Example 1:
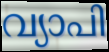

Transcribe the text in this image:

വ്യാപി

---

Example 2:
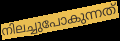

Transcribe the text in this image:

നിലച്ചുപോകുന്നത്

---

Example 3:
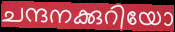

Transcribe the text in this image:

ചന്ദനക്കുറിയോ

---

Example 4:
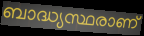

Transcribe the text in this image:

ബാദ്ധ്യസ്ഥരാണ്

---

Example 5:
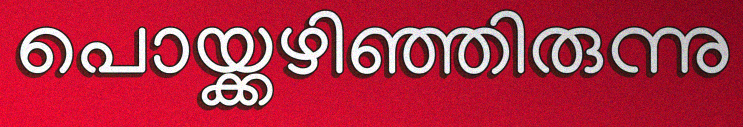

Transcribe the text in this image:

പൊയ്ക്കഴിഞ്ഞിരുന്നു